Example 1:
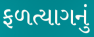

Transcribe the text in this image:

ફળત્યાગનું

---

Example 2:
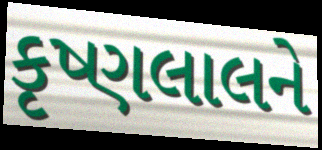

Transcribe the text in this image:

કૃષ્ણલાલને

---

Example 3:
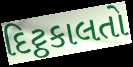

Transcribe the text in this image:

દિટ્ઠકાલતો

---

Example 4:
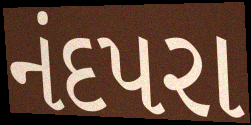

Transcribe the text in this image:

નંદપરા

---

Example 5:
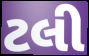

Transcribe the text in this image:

ટલી